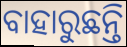
ବାହାରୁଛନ୍ତି